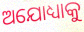
ଅଯୋଧ୍ୟାକୁ